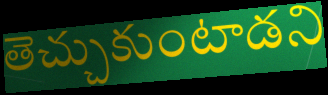
తెచ్చుకుంటాడని